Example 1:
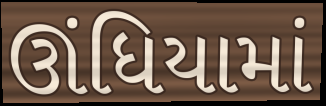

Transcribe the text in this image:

ઊંધિયામાં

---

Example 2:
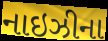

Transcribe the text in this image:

નાઇઝીના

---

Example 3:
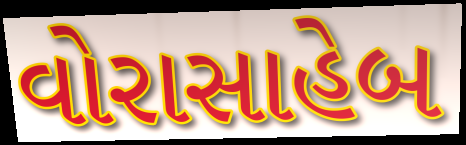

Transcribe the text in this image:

વોરાસાહેબ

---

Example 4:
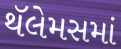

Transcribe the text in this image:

થૅલેમસમાં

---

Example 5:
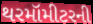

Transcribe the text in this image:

થરમૉમીટરની